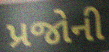
પ્રજોની